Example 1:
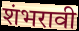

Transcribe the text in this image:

शंभरावी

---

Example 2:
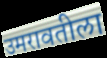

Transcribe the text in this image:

उमरावतीला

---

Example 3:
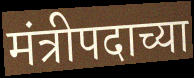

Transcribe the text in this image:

मंत्रीपदाच्या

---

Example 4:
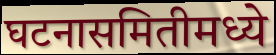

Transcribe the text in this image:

घटनासमितीमध्ये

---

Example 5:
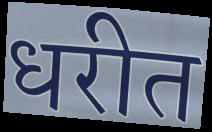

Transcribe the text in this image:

धरीत